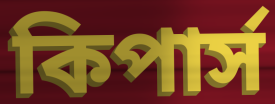
কিপার্স